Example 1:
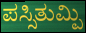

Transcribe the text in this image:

ಪಸ್ಸಿತುಮ್ಪಿ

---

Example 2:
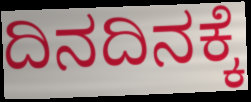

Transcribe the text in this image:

ದಿನದಿನಕ್ಕೆ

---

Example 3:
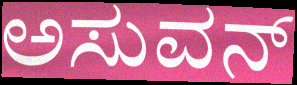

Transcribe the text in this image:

ಅಸುವನ್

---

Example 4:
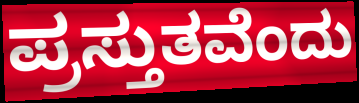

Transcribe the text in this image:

ಪ್ರಸ್ತುತವೆಂದು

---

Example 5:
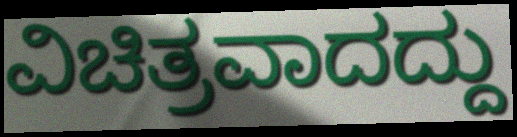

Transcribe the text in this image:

ವಿಚಿತ್ರವಾದದ್ದು